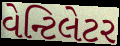
વેન્ટિલેટર